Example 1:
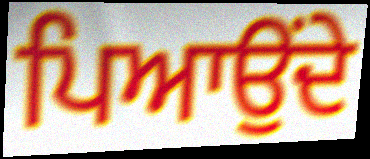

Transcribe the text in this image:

ਪਿਆਉਂਦੇ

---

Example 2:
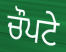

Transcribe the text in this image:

ਚੌਪਟੇ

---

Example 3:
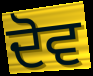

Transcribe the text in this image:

ਦੋਵ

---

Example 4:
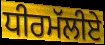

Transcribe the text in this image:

ਧੀਰਮੱਲੀਏ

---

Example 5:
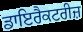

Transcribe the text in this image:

ਡਾਇਰੈਕਟਰੀਜ਼